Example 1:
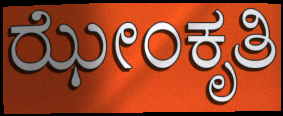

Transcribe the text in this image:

ಝೇಂಕೃತಿ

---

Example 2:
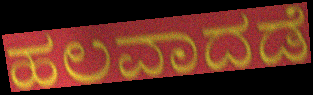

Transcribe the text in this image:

ಹಲವಾದಡೆ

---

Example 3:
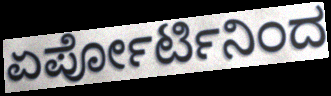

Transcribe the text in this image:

ಏರ್ಪೋರ್ಟಿನಿಂದ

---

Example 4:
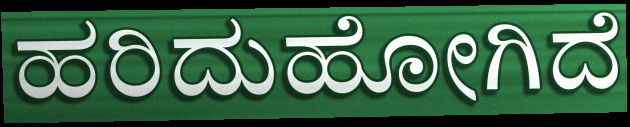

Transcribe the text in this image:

ಹರಿದುಹೋಗಿದೆ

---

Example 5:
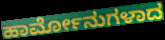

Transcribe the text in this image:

ಹಾರ್ಮೋನುಗಳಾದ